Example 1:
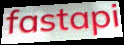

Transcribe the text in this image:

fastapi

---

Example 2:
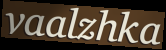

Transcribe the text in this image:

vaalzhka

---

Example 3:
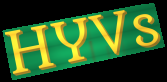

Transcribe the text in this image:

HYVs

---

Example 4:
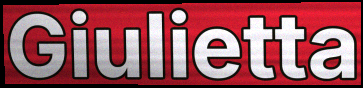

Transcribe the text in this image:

Giulietta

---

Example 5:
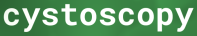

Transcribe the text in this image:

cystoscopy